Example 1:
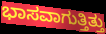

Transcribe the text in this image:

ಭಾಸವಾಗುತ್ತಿತ್ತು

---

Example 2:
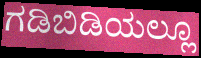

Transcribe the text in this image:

ಗಡಿಬಿಡಿಯಲ್ಲೂ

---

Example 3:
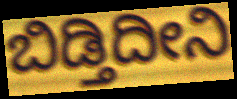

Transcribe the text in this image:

ಬಿಡ್ತಿದೀನಿ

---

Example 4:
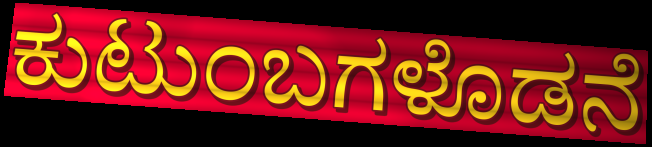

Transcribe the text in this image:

ಕುಟುಂಬಗಳೊಡನೆ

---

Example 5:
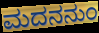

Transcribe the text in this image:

ಮದನನುಂ